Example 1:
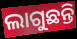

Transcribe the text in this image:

ଲାଗୁଛନ୍ତି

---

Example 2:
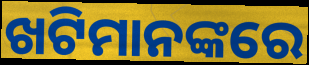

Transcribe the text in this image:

ଖଟିମାନଙ୍କରେ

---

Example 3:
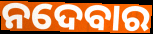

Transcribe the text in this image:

ନଦେବାର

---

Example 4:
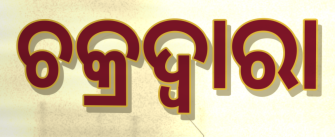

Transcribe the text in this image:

ଚକ୍ରଦ୍ୱାରା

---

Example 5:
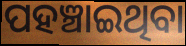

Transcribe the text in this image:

ପହଞ୍ଚାଇଥିବା